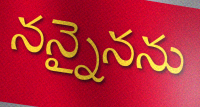
నన్నైనను